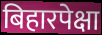
बिहारपेक्षा